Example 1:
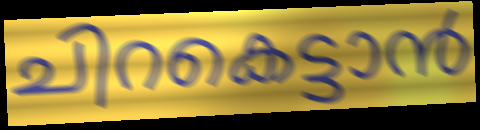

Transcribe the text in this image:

ചിറകെട്ടാൻ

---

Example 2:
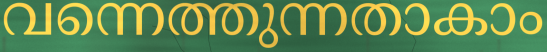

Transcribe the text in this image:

വന്നെത്തുന്നതാകാം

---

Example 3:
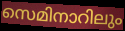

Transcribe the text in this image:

സെമിനാറിലും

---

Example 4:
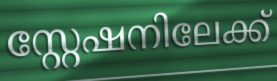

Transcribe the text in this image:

സ്റ്റേഷനിലേക്ക്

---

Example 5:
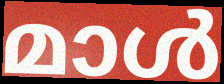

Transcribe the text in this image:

മാൾ